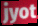
jyot